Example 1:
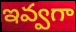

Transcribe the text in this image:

ఇవ్వగా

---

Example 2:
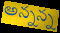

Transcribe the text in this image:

అన్నన్న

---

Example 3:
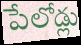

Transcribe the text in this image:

పేలోడ్లు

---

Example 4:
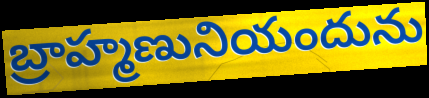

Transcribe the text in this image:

బ్రాహ్మణునియందును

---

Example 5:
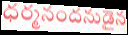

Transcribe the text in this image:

ధర్మనందనుడైన